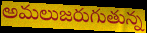
అమలుజరుగుతున్న